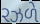
રઝળે